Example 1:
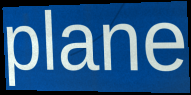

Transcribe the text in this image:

plane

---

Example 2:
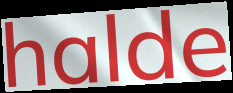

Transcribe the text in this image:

halde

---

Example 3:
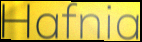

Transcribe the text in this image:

Hafnia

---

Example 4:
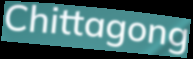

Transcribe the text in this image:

Chittagong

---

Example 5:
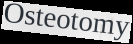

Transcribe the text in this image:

Osteotomy